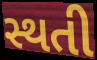
સ્થતી